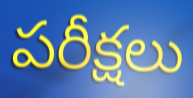
పరీక్షలు